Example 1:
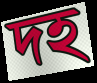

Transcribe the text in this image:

দহ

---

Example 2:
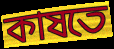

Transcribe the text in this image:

কাষতে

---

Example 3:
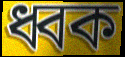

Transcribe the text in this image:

ধ্বক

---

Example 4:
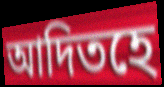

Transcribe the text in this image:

আদিতহে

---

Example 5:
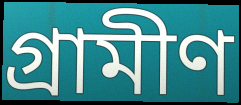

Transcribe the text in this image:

গ্ৰামীণ